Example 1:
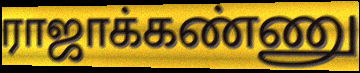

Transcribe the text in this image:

ராஜாக்கண்ணு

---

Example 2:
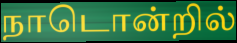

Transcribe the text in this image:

நாடொன்றில்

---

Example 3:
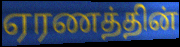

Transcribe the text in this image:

ஏரணத்தின்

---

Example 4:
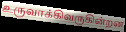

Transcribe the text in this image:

உருவாக்கிவருகின்றன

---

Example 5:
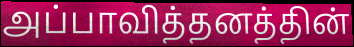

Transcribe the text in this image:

அப்பாவித்தனத்தின்